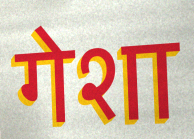
गेशा